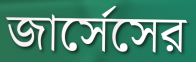
জার্সেসের